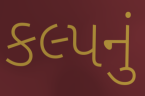
કલ્પનું